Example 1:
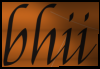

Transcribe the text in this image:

bhii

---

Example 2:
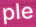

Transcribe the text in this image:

ple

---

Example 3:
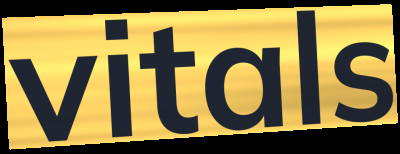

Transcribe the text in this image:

vitals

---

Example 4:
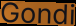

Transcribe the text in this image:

Gondi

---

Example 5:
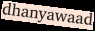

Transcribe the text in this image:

dhanyawaad